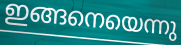
ഇങ്ങനെയെന്നു